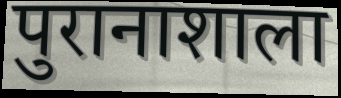
पुरानाशाला